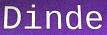
Dinde